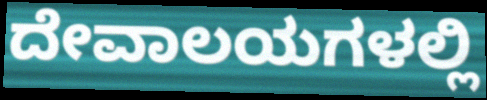
ದೇವಾಲಯಗಳಲ್ಲಿ